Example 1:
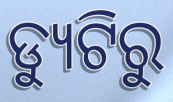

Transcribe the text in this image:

ଡ୍ୟୁଟିରୁ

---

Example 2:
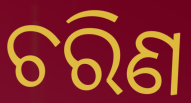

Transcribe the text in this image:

ଚରିଣ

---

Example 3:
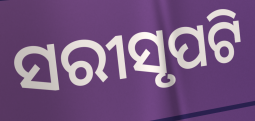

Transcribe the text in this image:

ସରୀସୃପଟି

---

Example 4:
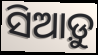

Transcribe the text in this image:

ସିଆଡ଼ୁ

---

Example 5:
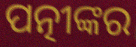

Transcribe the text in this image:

ପତ୍ନୀଙ୍କର